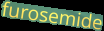
furosemide